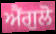
ਐਂਗੁਲੋ